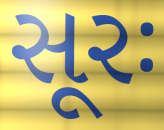
સૂરઃ